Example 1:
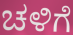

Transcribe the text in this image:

ಚಳಿಗೆ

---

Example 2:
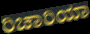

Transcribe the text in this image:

ರಿಚಾರಿಯಾ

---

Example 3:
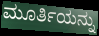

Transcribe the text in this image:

ಮೂರ್ತಿಯನ್ನು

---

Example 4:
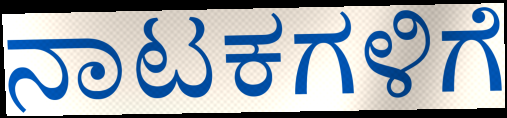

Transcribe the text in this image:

ನಾಟಕಗಳಿಗೆ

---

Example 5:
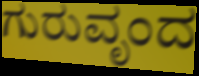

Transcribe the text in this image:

ಗುರುವೃಂದ